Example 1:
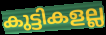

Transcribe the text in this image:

കുട്ടികളല്ല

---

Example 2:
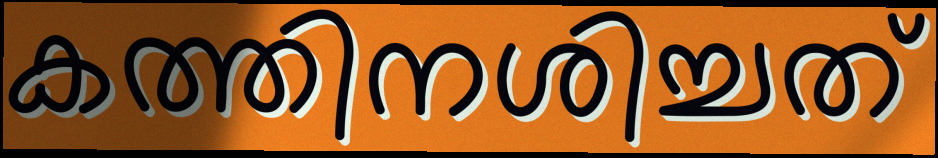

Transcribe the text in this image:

കത്തിനശിച്ചത്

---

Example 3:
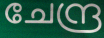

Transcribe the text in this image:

ചേന്ദ്ര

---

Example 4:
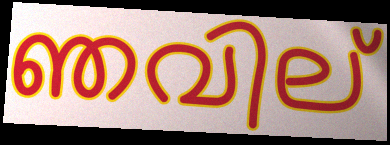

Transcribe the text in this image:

ഞവില്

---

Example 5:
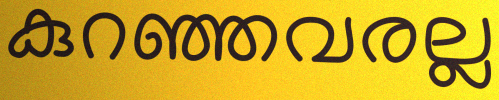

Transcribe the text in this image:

കുറഞ്ഞവരല്ല